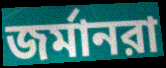
জর্মানরা